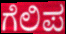
ಗೆಲಿಪ